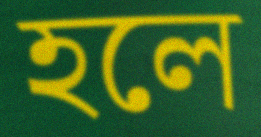
হলে